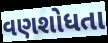
વણશોધતા